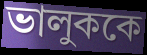
ভালুককে